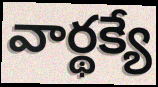
వార్థక్యే